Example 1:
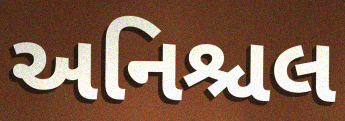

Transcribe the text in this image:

અનિશ્ચલ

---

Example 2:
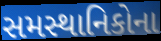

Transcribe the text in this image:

સમસ્થાનિકોના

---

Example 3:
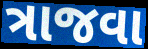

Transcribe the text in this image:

ત્રાજવા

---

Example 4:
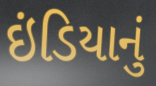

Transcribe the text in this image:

ઇંડિયાનું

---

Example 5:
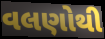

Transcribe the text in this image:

વલણોથી